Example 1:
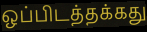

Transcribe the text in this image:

ஒப்பிடத்தக்கது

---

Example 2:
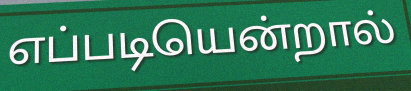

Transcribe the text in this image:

எப்படியென்றால்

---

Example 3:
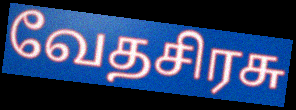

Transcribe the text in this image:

வேதசிரசு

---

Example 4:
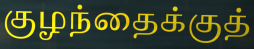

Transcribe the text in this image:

குழந்தைக்குத்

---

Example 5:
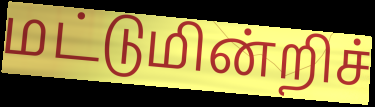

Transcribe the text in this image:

மட்டுமின்றிச்